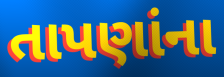
તાપણાંના